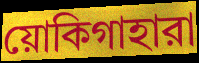
য়োকিগাহারা